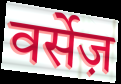
वर्सेज़